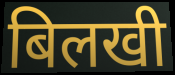
बिलखी